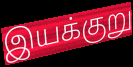
இயக்குறு